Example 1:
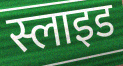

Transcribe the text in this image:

स्लाइड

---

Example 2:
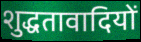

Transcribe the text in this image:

शुद्धतावादियों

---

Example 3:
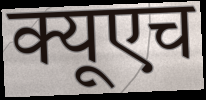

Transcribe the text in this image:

क्यूएच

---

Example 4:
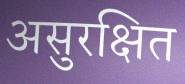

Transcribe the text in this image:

असुरक्षित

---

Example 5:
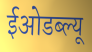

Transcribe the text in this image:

ईओडब्ल्यू